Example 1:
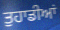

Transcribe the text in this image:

ਤੁਹਾਡੀਆਂ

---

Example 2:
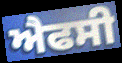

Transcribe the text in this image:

ਐਫਸੀ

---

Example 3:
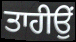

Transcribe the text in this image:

ਤਾਹੀਉਂ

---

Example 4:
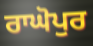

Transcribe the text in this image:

ਰਾਘੋਪੁਰ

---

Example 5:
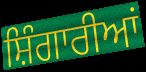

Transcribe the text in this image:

ਸ਼ਿੰਗਾਰੀਆਂ